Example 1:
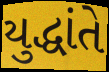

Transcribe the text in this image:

યુદ્ધાંતે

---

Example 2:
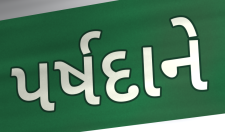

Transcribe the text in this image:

પર્ષદાને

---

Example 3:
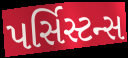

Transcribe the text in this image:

પર્સિસ્ટન્સ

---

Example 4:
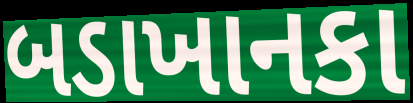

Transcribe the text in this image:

બડાખાનકા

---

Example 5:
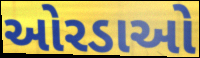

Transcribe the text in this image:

ઓરડાઓ